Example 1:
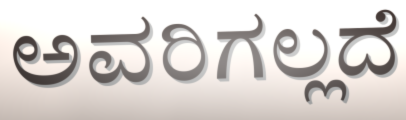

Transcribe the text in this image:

ಅವರಿಗಲ್ಲದೆ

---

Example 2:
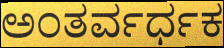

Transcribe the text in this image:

ಅಂತರ್ವರ್ಧಕ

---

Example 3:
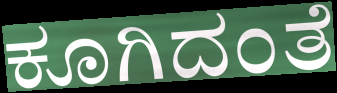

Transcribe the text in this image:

ಕೂಗಿದಂತೆ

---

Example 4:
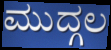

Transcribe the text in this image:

ಮುದ್ಗಲ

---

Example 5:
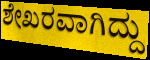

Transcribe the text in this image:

ಶೇಖರವಾಗಿದ್ದು